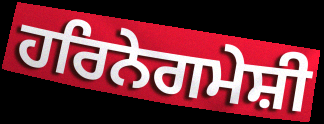
ਹਰਿਨੇਗਮੇਸ਼ੀ